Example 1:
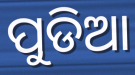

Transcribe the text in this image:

ପୁଡିଆ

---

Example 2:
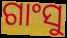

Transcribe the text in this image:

ଗାଂସୁ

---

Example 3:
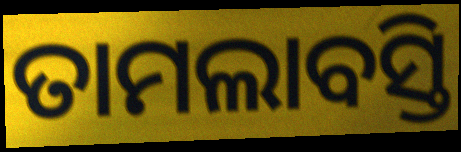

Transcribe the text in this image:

ତାମଲାବସ୍ତି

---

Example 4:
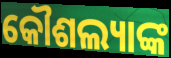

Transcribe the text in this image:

କୌଶଲ୍ୟାଙ୍କ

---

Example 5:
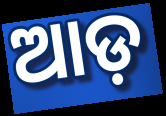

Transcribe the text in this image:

ଆଡ଼